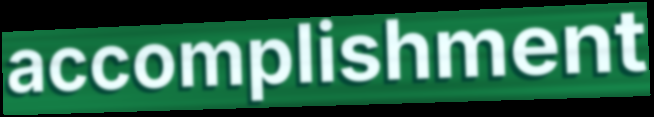
accomplishment